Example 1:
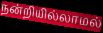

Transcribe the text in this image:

நன்றியில்லாமல்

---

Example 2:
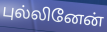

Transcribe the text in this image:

புல்லினேன்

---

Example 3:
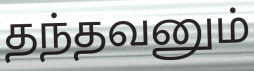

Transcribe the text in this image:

தந்தவனும்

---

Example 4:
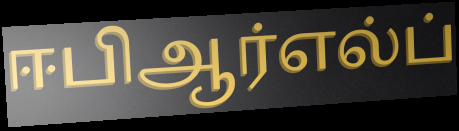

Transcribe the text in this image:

ஈபிஆர்எல்ப்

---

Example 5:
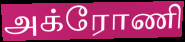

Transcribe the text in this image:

அக்ரோணி